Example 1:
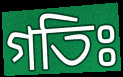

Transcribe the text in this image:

গতিঃ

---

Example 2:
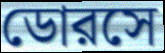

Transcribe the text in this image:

ডোরসে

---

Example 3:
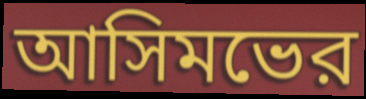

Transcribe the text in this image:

আসিমভের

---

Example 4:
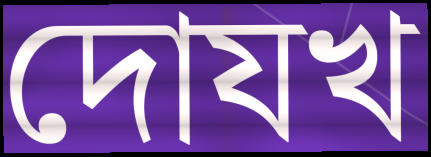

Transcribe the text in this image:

দোযখ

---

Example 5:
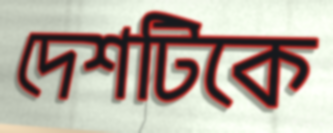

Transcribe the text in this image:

দেশটিকে